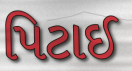
પિટાઈ